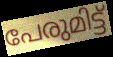
പേരുമിട്ട്